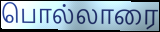
பொல்லாரை